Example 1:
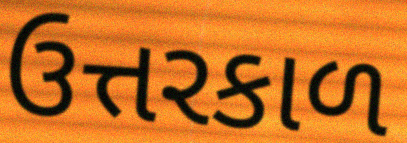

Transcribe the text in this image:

ઉત્તરકાળ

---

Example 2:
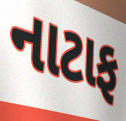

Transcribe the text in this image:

નાટાફ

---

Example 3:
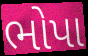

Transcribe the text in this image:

ભોપા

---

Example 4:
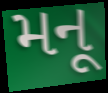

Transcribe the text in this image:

મનૂ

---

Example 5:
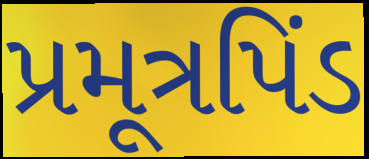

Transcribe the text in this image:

પ્રમૂત્રપિંડ